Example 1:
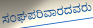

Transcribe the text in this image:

ಸಂಘಪರಿವಾರದವರು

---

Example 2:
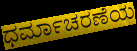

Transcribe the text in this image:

ಧರ್ಮಾಚರಣೆಯ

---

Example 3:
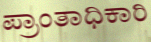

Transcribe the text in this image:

ಪ್ರಾಂತಾಧಿಕಾರಿ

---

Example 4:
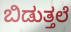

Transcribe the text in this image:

ಬಿಡುತ್ತಲೆ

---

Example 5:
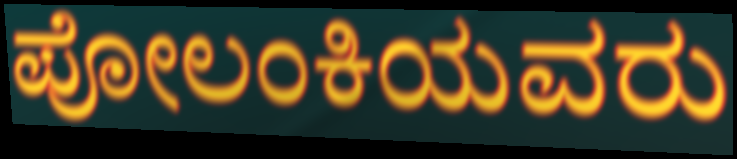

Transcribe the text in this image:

ಪೋಲಂಕಿಯವರು